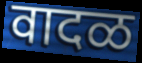
वादळ